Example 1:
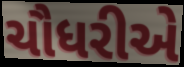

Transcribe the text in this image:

ચૌધરીએ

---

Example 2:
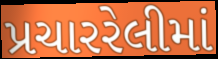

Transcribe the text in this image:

પ્રચારરેલીમાં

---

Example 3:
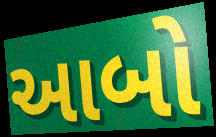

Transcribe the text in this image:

આબો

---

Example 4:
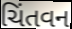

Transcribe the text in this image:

ચિંતવન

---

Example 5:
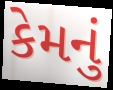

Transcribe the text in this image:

કેમનું